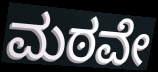
ಮಠವೇ